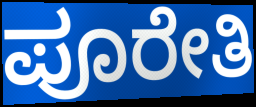
ಪೂರೇತಿ